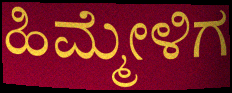
ಹಿಮ್ಮೇಳಿಗ